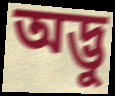
অদ্ভু